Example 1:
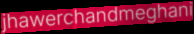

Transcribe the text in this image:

jhawerchandmeghani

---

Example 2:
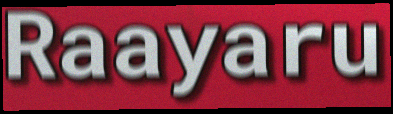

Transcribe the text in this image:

Raayaru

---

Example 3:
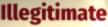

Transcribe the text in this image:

Illegitimate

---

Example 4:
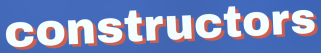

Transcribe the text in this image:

constructors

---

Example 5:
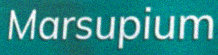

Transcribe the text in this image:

Marsupium